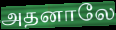
அதனாலே